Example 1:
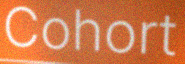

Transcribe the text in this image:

Cohort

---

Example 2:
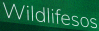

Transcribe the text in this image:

Wildlifesos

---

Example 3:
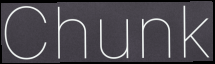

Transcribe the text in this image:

Chunk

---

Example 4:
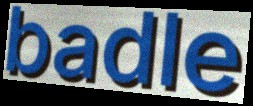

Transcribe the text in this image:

badle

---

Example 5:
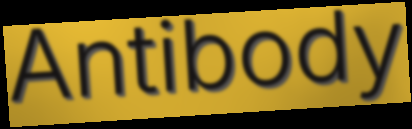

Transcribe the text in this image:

Antibody